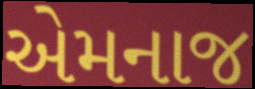
એમનાજ